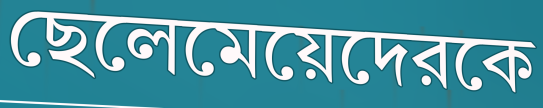
ছেলেমেয়েদেরকে